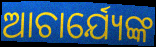
ଆଚାର୍ଯ୍ୟେଙ୍କ